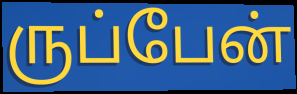
ருப்பேன்